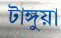
টাঙ্গুয়া